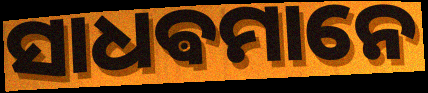
ସାଧଵମାନେ